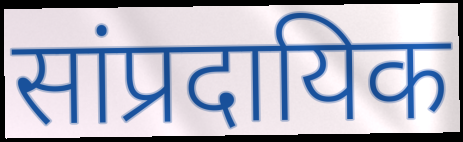
सांप्रदायिक